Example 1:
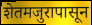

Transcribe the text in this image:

शेतमजुरापासून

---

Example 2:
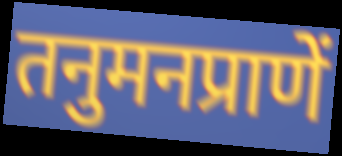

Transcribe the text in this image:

तनुमनप्राणें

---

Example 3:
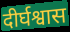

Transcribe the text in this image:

दीर्घश्वास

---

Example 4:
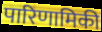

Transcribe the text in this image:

पारिणामिकी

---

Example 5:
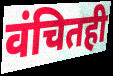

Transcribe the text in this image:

वंचितही